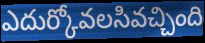
ఎదుర్కోవలసివచ్చింది